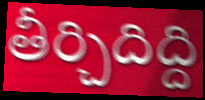
తీర్చిదిద్ది